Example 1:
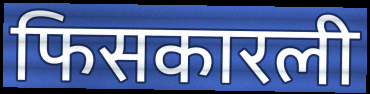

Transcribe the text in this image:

फिसकारली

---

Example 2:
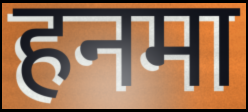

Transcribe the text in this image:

हनमा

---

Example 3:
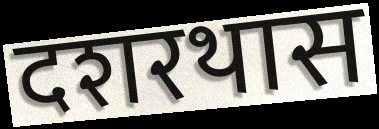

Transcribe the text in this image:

दशरथास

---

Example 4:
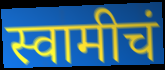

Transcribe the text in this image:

स्वामीचं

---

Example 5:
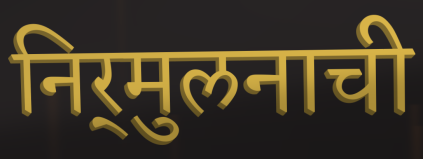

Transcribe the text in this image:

निर्मुलनाची